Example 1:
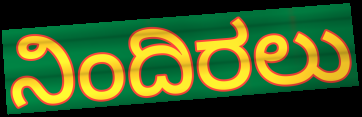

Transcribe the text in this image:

ನಿಂದಿರಲು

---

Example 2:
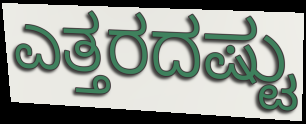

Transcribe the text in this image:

ಎತ್ತರದಷ್ಟು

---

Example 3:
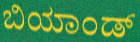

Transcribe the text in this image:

ಬಿಯಾಂಡ್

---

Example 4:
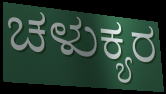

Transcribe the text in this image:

ಚಳುಕ್ಯರ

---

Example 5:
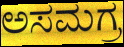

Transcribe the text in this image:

ಅಸಮಗ್ರ